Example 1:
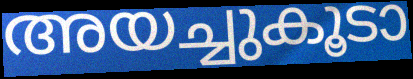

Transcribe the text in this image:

അയച്ചുകൂടാ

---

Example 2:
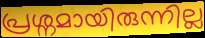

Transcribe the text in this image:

പ്രശ്നമായിരുന്നില്ല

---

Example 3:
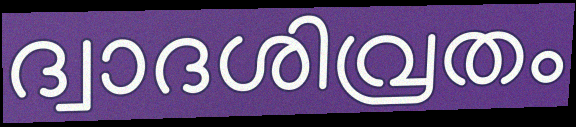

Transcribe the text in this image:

ദ്വാദശിവ്രതം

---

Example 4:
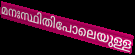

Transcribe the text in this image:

മനഃസ്ഥിതിപോലെയുള്ള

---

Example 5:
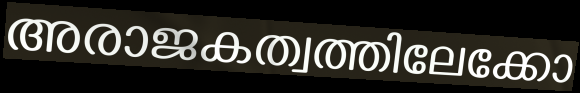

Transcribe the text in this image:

അരാജകത്വത്തിലേക്കോ